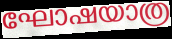
ഘോഷയാത്ര